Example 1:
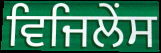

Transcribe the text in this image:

ਵਿਜਿਲੇਂਸ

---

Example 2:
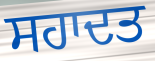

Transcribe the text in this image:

ਸਹਾਦਤ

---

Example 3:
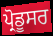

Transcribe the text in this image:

ਪ੍ਰੋਡੂਸਰ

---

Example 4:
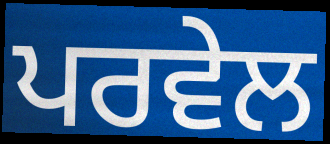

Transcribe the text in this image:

ਪਰਵੇਲ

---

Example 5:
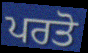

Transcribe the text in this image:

ਪਰਤੋ